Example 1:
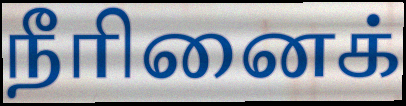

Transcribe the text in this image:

நீரினைக்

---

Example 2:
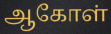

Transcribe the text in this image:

ஆகோள்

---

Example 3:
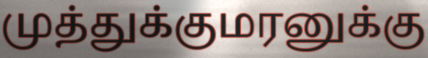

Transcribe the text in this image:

முத்துக்குமரனுக்கு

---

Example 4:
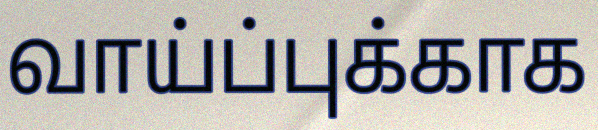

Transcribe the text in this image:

வாய்ப்புக்காக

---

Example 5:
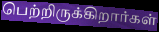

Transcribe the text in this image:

பெற்றிருக்கிறார்கள்